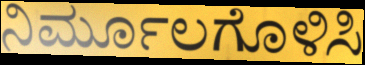
ನಿರ್ಮೂಲಗೊಳಿಸಿ